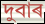
দুবাৰ